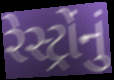
રેસ્ટ્રોંનું